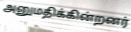
அனுமதிக்கின்றனர்